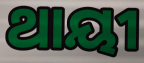
ଥାୟୀ